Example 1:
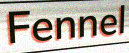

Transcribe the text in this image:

Fennel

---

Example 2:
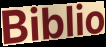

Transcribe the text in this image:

Biblio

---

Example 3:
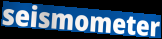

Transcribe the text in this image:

seismometer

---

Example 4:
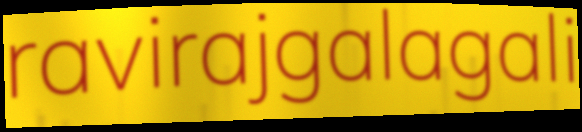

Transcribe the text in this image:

ravirajgalagali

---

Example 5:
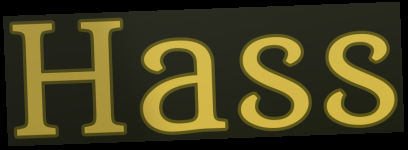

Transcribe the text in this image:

Hass